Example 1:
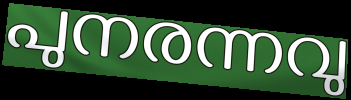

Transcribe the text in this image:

പുനരന്നവു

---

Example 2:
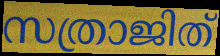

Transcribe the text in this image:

സത്രാജിത്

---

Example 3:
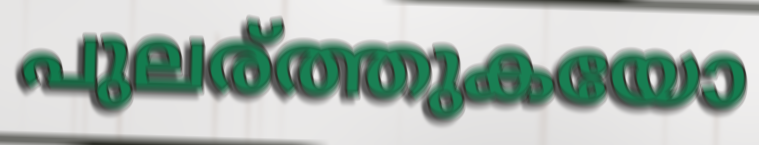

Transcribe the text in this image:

പുലര്ത്തുകയോ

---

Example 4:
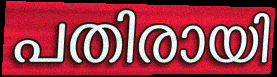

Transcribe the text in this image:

പതിരായി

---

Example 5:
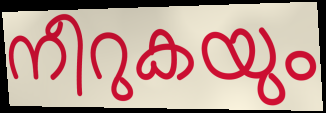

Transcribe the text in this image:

നീറുകയും